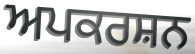
ਅਪਕਰਸ਼ਨ